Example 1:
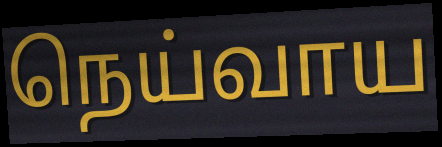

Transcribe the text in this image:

நெய்வாய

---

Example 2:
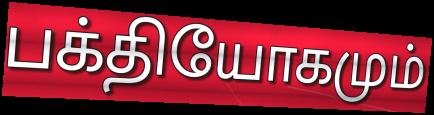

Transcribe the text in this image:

பக்தியோகமும்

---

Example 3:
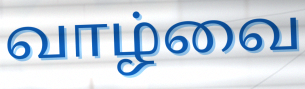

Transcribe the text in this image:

வாழ்வை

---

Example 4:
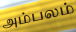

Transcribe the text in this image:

அம்பலம்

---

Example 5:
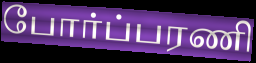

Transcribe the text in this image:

போர்ப்பரணி